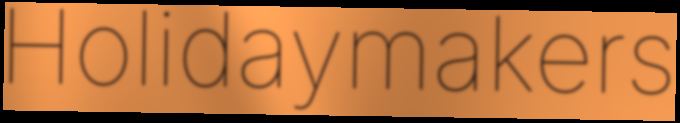
Holidaymakers